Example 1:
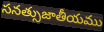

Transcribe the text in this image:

సనత్సుజాతీయము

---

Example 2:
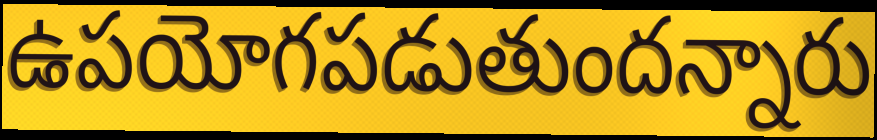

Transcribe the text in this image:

ఉపయోగపడుతుందన్నారు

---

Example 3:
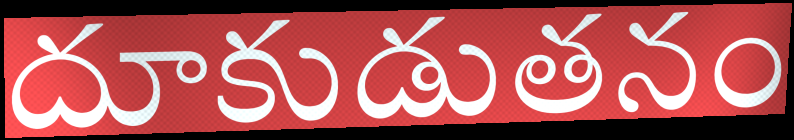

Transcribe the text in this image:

దూకుడుతనం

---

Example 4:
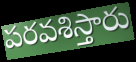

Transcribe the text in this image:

పరవశిస్తారు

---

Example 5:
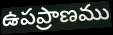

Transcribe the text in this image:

ఉపప్రాణము